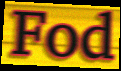
Fod